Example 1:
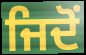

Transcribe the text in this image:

ਜਿਦੋਂ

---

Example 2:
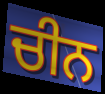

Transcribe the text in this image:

ਚੀਨ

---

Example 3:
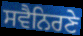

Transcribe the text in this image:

ਸਵੈਨਿਰਣੇ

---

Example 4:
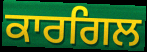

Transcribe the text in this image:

ਕਾਰਗਿਲ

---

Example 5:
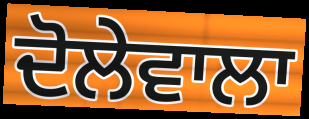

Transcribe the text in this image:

ਦੋਲੇਵਾਲਾ